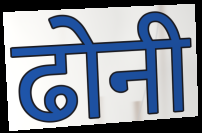
ढोनी